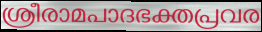
ശ്രീരാമപാദഭക്തപ്രവര